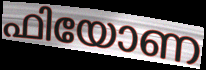
ഫിയോണ